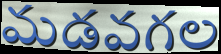
మడవగల